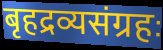
बृहद्रव्यसंग्रहः